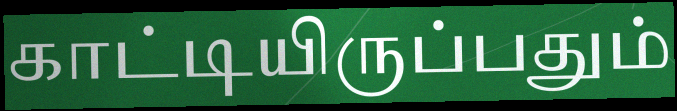
காட்டியிருப்பதும்